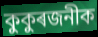
কুকুৰজনীক